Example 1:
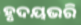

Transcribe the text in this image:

ହୃଦୟଭରି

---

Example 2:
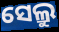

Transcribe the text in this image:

ସେଲ୍ରୁ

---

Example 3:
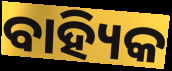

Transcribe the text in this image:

ବାହ୍ୟିକ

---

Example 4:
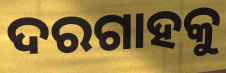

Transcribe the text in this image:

ଦରଗାହକୁ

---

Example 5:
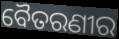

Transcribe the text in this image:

ବୈତରଣୀର